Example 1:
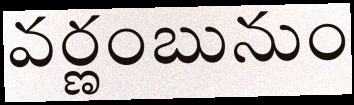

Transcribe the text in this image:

వర్ణంబునుం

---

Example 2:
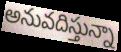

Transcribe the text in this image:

అనువదిస్తున్నా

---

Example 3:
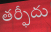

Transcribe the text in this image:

తర్ఫీదు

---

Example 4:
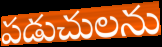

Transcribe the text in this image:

పడుచులను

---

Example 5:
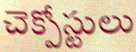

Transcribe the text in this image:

చెక్పోస్టులు